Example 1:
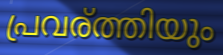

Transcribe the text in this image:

പ്രവര്ത്തിയും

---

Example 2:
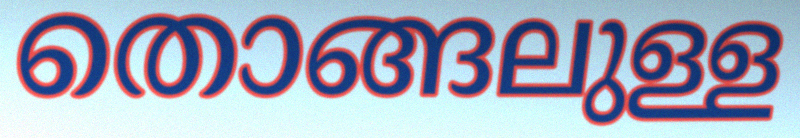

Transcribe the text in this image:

തൊങ്ങലുള്ള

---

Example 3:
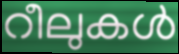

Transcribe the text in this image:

റീലുകൾ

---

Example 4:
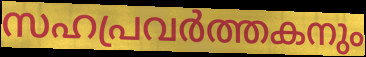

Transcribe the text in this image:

സഹപ്രവർത്തകനും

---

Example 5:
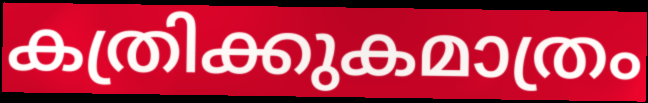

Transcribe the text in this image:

കത്രിക്കുകമാത്രം